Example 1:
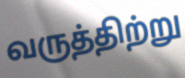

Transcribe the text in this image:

வருத்திற்று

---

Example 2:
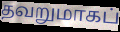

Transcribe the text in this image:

தவறுமாகப்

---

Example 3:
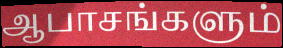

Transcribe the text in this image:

ஆபாசங்களும்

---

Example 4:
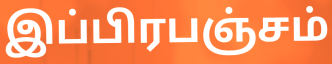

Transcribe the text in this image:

இப்பிரபஞ்சம்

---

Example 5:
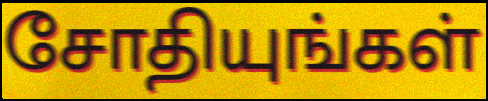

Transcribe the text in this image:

சோதியுங்கள்